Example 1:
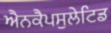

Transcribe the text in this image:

ਐਨਕੈਪਸੁਲੇਟਿਡ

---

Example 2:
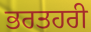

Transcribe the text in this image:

ਭਰਤਹਰੀ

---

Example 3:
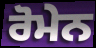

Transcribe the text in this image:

ਰੋਮੇਨ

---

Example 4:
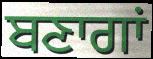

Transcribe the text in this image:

ਬਣਾਗਾਂ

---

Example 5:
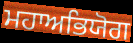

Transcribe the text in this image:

ਮਹਾਅਭਿਯੋਗ